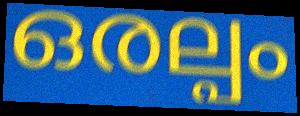
ഒരല്പം